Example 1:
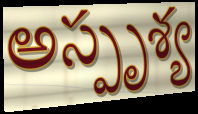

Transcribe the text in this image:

అస్పృశ్య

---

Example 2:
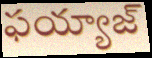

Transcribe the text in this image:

ఫయ్యాజ్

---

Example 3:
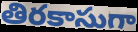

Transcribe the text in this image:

తిరకాసుగా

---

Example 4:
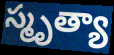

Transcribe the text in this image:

స్మృత్యా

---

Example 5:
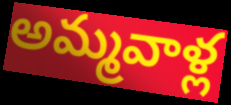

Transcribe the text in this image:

అమ్మవాళ్ల